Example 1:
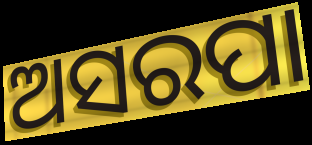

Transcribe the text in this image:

ଅସରପା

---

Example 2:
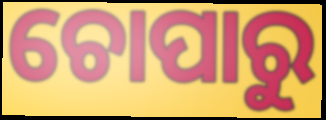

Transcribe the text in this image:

ଚୋପାରୁ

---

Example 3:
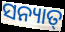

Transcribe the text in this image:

ସନ୍ୟାତ୍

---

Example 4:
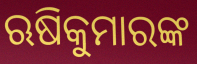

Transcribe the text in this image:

ଋଷିକୁମାରଙ୍କ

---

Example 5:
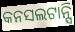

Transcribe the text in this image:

କନସଲଟାନ୍ସି